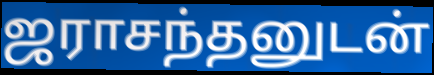
ஜராசந்தனுடன்